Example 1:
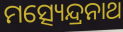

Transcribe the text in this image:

ମତ୍ସ୍ୟେନ୍ଦ୍ରନାଥ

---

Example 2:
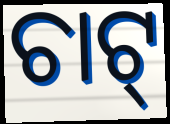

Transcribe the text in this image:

ଚାଟ୍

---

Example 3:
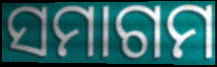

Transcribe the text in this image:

ସମାଗମ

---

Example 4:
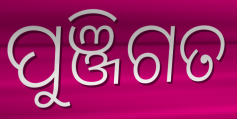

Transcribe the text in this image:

ପୁଞ୍ଜିଗତ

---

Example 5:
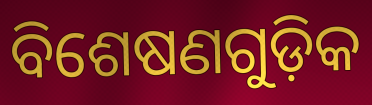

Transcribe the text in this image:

ବିଶେଷଣଗୁଡ଼ିକ